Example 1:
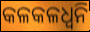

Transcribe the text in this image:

କଳକଳଧ୍ଵନି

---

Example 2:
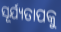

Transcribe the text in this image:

ସୂର୍ଯ୍ୟତାପକୁ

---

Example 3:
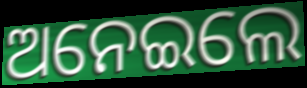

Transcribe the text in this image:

ଅନେଇଲେ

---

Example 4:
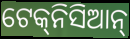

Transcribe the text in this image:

ଟେକ୍‌ନିସିଆନ୍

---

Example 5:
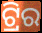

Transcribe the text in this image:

ଟ୍ରିର